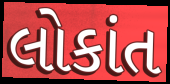
લોકાંત